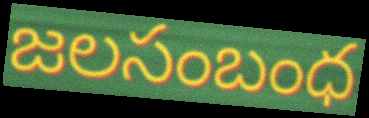
జలసంబంధ